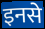
इनसे